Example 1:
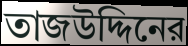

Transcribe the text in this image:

তাজউদ্দিনের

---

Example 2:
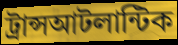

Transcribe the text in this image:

ট্রান্সআটলান্টিক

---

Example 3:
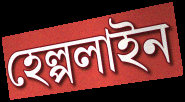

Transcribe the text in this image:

হেল্পলাইন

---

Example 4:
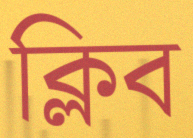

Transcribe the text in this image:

ক্লিব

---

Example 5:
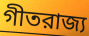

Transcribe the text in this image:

গীতরাজ্য